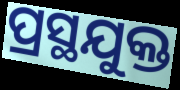
ପ୍ରସ୍ଥଯୁକ୍ତ